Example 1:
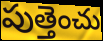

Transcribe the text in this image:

పుత్తెంచు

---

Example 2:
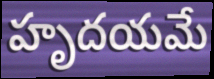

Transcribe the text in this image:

హృదయమే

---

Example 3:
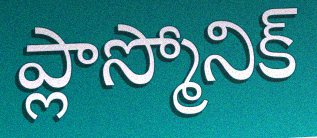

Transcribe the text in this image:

ప్లాస్మోనిక్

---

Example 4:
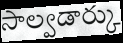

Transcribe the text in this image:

సాల్వడార్కు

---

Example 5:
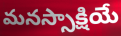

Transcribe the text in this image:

మనస్సాక్షియే